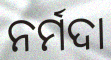
ନର୍ମଦା